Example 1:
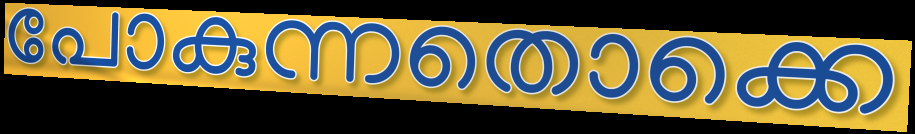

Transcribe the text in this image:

പോകുന്നതൊക്കെ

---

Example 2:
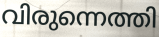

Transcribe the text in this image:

വിരുന്നെത്തി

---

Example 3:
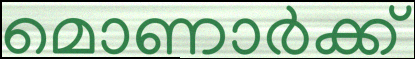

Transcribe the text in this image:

മൊണാർക്ക്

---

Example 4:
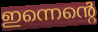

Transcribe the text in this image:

ഇന്നെന്റെ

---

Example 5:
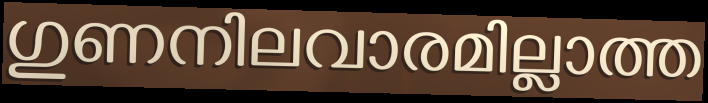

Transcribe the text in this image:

ഗുണനിലവാരമില്ലാത്ത